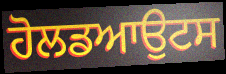
ਹੋਲਡਆਉਟਸ